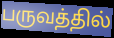
பருவத்தில்